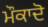
ਮੌਕਾਦੋ